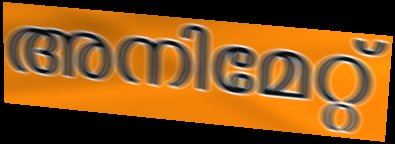
അനിമേറ്റ്